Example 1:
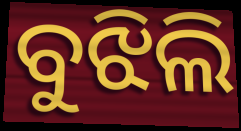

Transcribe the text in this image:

ବୁଝିଲି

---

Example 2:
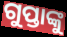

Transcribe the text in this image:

ଗୁପ୍ତାଙ୍କୁ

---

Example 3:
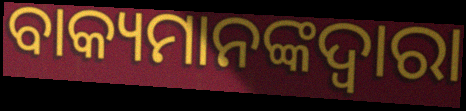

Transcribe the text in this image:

ବାକ୍ୟମାନଙ୍କଦ୍ୱାରା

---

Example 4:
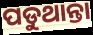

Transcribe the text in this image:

ପଡୁଥାନ୍ତା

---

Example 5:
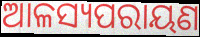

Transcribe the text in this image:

ଆଳସ୍ୟପରାୟଣ